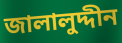
জালালুদ্দীন